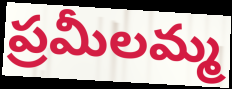
ప్రమీలమ్మ